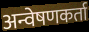
अन्वेषणकर्ता